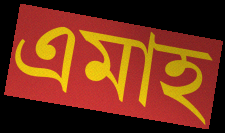
এমাহ